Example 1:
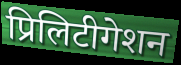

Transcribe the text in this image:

प्रिलिटीगेशन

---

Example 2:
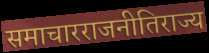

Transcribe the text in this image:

समाचारराजनीतिराज्य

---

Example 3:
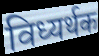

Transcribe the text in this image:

विध्यर्थक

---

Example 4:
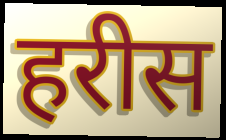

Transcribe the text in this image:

हरीस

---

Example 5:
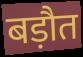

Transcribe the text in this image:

बड़ौत